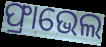
ଫ୍ରାଭେଲ